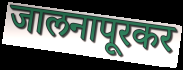
जालनापूरकर